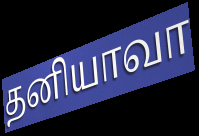
தனியாவா